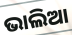
ଭାଲିଆ